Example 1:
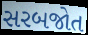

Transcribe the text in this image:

સરબજોત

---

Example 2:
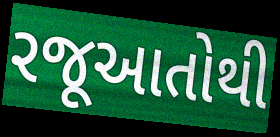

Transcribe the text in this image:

રજૂઆતોથી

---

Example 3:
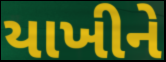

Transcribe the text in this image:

યાખીને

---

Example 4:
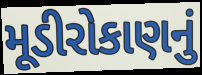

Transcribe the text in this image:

મૂડીરોકાણનું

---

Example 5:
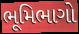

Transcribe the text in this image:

ભૂમિભાગો